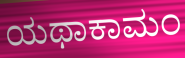
ಯಥಾಕಾಮಂ